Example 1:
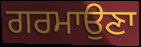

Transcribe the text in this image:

ਗਰਮਾਉਣਾ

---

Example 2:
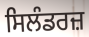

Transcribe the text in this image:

ਸਿਲੰਡਰਜ਼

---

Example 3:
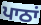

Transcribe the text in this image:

ਪਾਠਾਂ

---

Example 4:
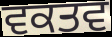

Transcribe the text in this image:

ਵਕਤਵ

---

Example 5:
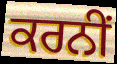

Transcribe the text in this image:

ਕਰਨੀਂ